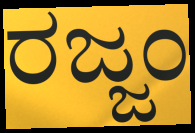
ರಜ್ಜಂ